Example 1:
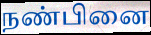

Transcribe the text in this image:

நண்பினை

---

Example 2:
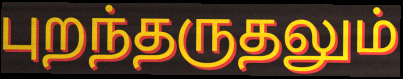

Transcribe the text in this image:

புறந்தருதலும்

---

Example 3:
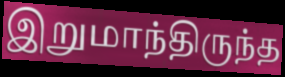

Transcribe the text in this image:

இறுமாந்திருந்த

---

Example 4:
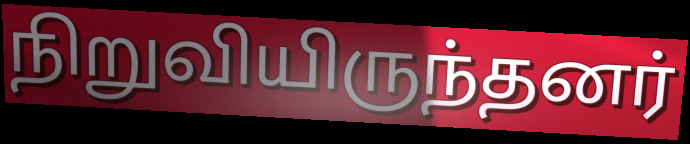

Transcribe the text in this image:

நிறுவியிருந்தனர்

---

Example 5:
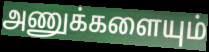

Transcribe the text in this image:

அணுக்களையும்